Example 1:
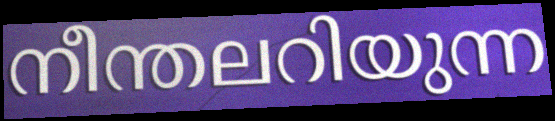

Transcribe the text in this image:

നീന്തലറിയുന്ന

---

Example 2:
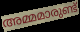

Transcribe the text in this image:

അമ്മമാരുണ്ട്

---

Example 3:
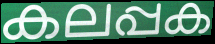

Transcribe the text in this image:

കലപ്പക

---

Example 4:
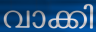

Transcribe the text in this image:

വാക്കി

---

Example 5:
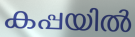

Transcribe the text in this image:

കപ്പയിൽ